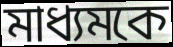
মাধ্যমকে